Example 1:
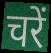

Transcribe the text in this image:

चरें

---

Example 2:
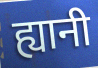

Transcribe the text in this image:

ह्यानी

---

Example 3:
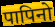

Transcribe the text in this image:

पापिनो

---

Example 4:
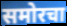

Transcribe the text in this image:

समोरचा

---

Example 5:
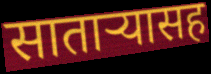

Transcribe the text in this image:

साताऱ्यासह